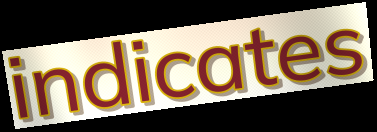
indicates